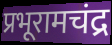
प्रभूरामचंद्र